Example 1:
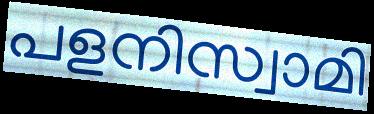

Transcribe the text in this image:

പളനിസ്വാമി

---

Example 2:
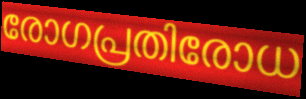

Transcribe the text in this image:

രോഗപ്രതിരോധ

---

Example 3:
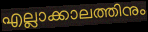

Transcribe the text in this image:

എല്ലാക്കാലത്തിനും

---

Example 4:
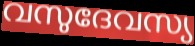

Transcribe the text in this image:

വസുദേവസ്യ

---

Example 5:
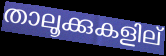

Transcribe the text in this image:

താലൂക്കുകളില്